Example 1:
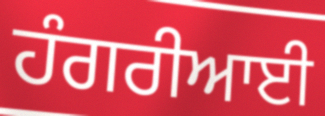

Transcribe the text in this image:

ਹੰਗਰੀਆਈ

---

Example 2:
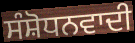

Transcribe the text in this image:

ਸੰਸ਼ੋਧਨਵਾਦੀ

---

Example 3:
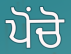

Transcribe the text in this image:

ਪੋਂਚੋ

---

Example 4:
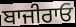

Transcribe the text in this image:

ਬਾਜੀਰਾਓ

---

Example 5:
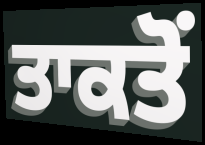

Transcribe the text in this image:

ਤਾਕਤੋਂ